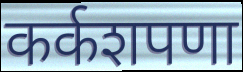
कर्कशपणा